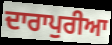
ਦਾਰਾਪੁਰੀਆ